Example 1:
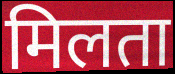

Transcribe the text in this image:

मिलता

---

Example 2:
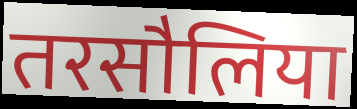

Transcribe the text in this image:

तरसौलिया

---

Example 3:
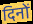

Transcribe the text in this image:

दिनों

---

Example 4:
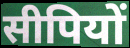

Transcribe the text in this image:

सीपियों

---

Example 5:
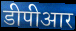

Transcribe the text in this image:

डीपीआर